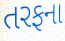
તરફના